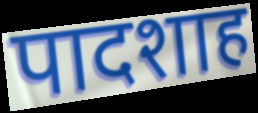
पादशाह